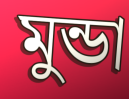
মুন্ডা